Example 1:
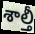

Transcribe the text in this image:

శాల్తీ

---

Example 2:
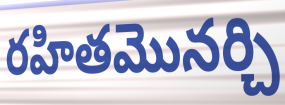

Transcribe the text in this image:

రహితమొనర్చి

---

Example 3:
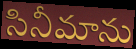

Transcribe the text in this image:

సినీమాను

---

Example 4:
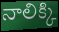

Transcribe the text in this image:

నాలిక్కి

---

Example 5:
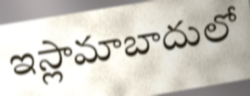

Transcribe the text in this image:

ఇస్లామాబాదులో